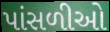
પાંસળીઓ